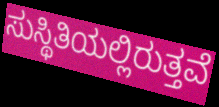
ಸುಸ್ಥಿತಿಯಲ್ಲಿರುತ್ತವೆ